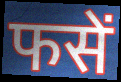
फसें